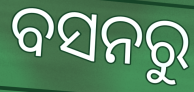
ବସନରୁ